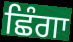
ਛਿੰਗਾ